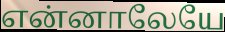
என்னாலேயே